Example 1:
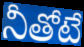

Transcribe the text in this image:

నీతోటే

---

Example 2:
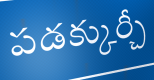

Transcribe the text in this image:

పడక్కుర్చీ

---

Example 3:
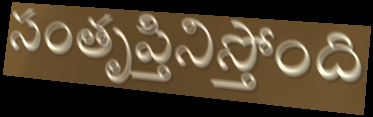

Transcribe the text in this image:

సంతృప్తినిస్తోంది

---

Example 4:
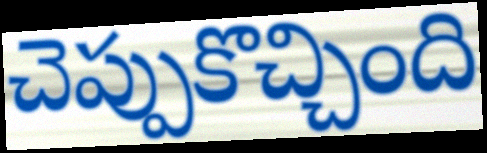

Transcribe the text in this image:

చెప్పుకొచ్చింది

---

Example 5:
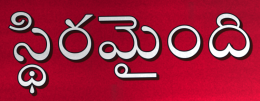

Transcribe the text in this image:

స్థిరమైంది